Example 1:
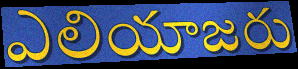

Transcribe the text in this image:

ఎలియాజరు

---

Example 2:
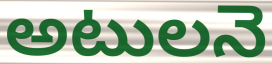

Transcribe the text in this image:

అటులనె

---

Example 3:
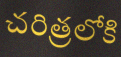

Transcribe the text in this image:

చరిత్రలోకి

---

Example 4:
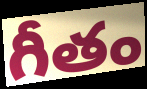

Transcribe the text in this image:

గీతం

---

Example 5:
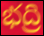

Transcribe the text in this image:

భద్రి